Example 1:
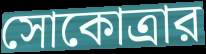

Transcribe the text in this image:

সোকোত্রার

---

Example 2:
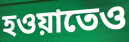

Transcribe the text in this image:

হওয়াতেও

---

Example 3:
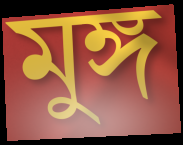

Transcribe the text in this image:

মুঙ্গ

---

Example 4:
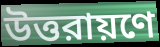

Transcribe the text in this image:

উত্তরায়ণে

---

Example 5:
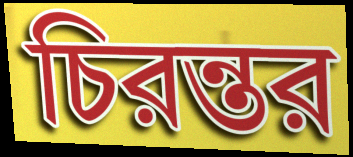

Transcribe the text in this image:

চিরন্তর